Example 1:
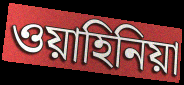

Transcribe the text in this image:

ওয়াহিনিয়া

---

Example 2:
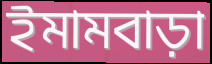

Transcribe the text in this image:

ইমামবাড়া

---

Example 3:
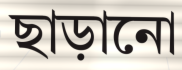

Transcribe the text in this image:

ছাড়ানো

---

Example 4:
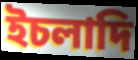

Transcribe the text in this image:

ইচলাদি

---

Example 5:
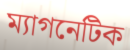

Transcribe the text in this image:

ম্যাগনেটিক